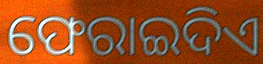
ଫେରାଇଦିଏ